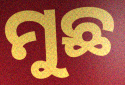
ମୁଛ